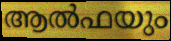
ആൽഫയും